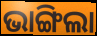
ଭାଙ୍ଗିଲା